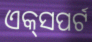
ଏକ୍‌ସପର୍ଟ